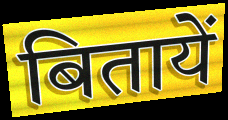
बितायें